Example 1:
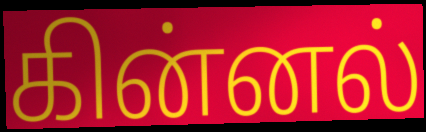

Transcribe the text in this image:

கின்னல்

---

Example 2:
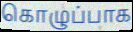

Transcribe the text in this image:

கொழுப்பாக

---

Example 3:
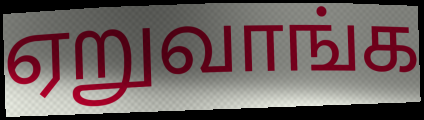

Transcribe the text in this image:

ஏறுவாங்க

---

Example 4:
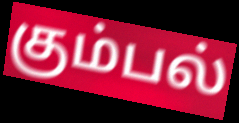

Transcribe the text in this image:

கும்பல்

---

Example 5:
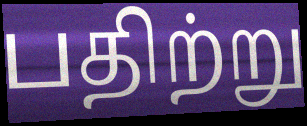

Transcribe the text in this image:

பதிற்று